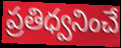
ప్రతిధ్వనించే